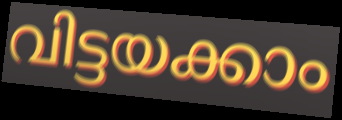
വിട്ടയക്കാം